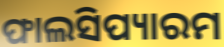
ଫାଲସିପ୍ୟାରମ